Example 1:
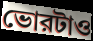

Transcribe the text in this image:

ভোরটাও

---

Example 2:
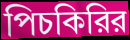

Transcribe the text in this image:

পিচকিরির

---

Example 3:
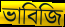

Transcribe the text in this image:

ভাবিজি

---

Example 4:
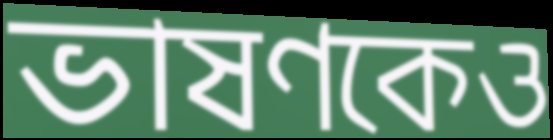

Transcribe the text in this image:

ভাষণকেও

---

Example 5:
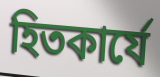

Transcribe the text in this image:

হিতকার্যে